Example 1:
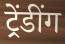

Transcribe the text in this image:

ट्रेंडींग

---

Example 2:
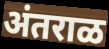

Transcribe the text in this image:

अंतराळ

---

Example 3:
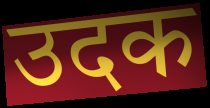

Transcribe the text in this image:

उदक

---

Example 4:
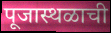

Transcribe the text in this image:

पूजास्थळाची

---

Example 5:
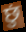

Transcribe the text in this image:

छुं